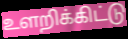
உளறிக்கிட்டு